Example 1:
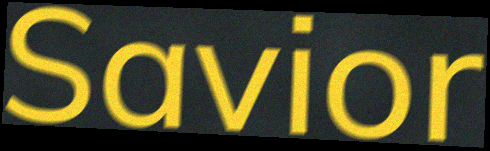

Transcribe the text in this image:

Savior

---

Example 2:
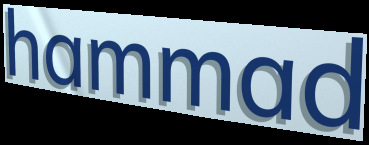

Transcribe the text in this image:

hammad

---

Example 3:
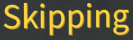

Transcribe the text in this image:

Skipping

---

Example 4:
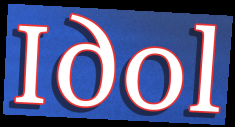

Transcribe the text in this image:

Idol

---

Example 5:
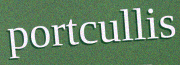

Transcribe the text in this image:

portcullis